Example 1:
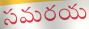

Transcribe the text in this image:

సమరయ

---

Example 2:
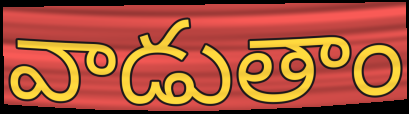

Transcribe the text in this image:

వాడుతాం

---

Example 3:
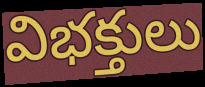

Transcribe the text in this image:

విభక్తులు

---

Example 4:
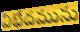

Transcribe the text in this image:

విభేదమును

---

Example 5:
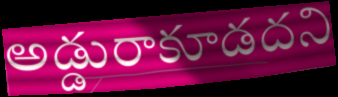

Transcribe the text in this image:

అడ్డురాకూడదని